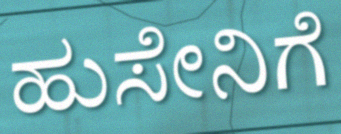
ಹುಸೇನಿಗೆ